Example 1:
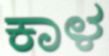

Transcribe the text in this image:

ಕಾಳ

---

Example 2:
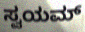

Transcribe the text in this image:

ಸ್ವಯಮ್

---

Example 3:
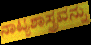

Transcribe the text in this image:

ನಾಟ್ಯಶಾಸ್ತ್ರವನ್ನು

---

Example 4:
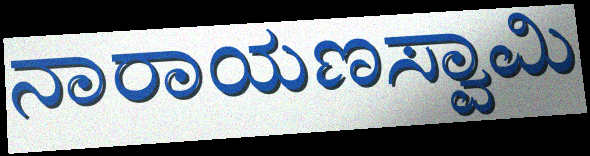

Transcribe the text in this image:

ನಾರಾಯಣಸ್ವಾಮಿ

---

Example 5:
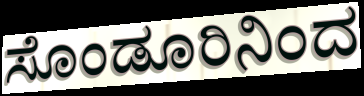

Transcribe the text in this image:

ಸೊಂಡೂರಿನಿಂದ